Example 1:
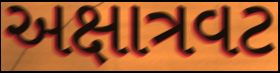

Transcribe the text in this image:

અક્ષાત્રવટ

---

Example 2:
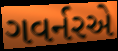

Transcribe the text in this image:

ગવર્નરએ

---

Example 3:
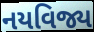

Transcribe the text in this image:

નયવિજ્ય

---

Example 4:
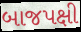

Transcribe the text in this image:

બાજપક્ષી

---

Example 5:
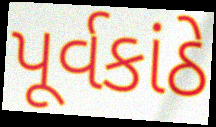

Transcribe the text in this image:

પૂર્વકાંઠે